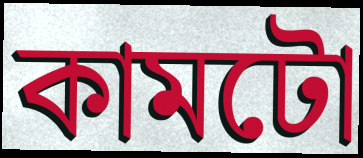
কামটো